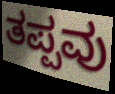
ತಪ್ಪವು